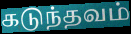
கடுந்தவம்